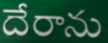
దేరాను